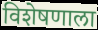
विशेषणाला